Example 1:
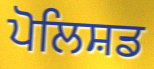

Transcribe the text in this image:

ਪੋਲਿਸ਼ਡ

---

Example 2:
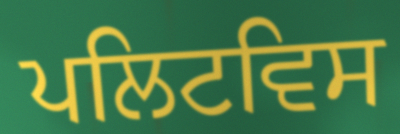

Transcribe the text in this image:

ਪਲਿਟਵਿਸ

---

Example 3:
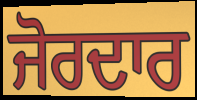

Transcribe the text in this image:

ਜੋਰਦਾਰ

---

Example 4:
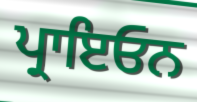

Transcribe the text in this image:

ਪ੍ਰਾਇਓਨ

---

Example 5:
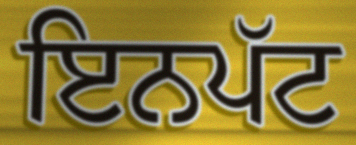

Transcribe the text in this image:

ਇਨਪੱਟ